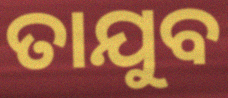
ତାଯୁବ